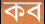
কব